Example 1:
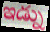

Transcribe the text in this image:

ఇడ్ను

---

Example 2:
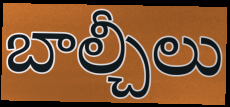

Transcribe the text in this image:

బాల్చీలు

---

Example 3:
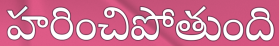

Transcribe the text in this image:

హరించిపోతుంది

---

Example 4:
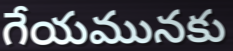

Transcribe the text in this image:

గేయమునకు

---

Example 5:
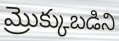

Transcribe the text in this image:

మ్రొక్కుబడిని